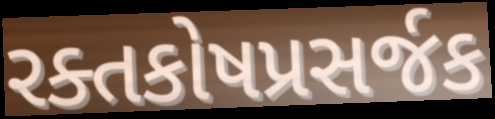
રક્તકોષપ્રસર્જક